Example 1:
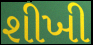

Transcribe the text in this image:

શીખી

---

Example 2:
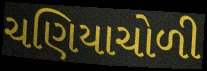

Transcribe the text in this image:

ચણિયાચોળી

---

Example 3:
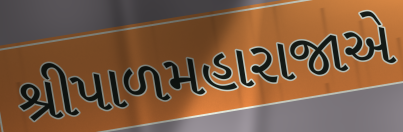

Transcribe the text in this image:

શ્રીપાળમહારાજાએ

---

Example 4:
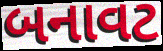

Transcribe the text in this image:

બનાવટ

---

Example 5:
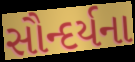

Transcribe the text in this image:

સૌન્દર્યના